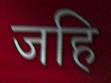
जहि